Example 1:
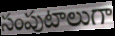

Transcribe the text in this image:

సంపుటాలుగా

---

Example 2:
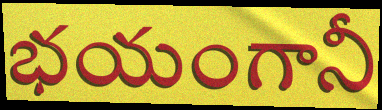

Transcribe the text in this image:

భయంగానీ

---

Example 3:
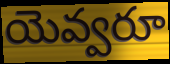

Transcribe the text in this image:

యెవ్వరూ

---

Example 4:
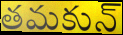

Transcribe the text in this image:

తమకున్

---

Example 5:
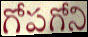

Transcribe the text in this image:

గోపగోని